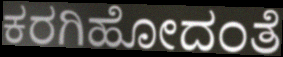
ಕರಗಿಹೋದಂತೆ